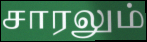
சாரலும்